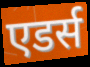
एडर्स